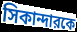
সিকান্দারকে